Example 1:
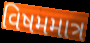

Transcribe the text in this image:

વિષમમાત્ર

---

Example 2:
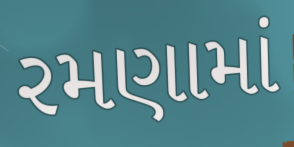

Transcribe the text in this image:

રમણામાં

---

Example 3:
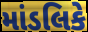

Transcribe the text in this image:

માંડલિકે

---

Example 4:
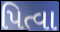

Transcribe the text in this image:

પિત્વા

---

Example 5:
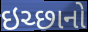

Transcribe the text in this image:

ઇચ્છાનો